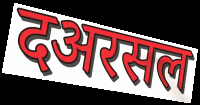
दअरसल